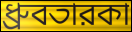
ধ্রুবতারকা